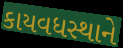
કાયવધસ્થાને